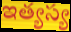
ఇత్యస్య